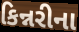
કિન્નરીના